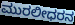
ಮುರಲೀಧರನ